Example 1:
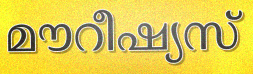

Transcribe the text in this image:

മൗറീഷ്യസ്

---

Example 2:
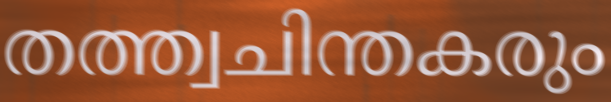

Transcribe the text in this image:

തത്ത്വചിന്തകരും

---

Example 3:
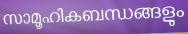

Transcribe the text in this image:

സാമൂഹികബന്ധങ്ങളും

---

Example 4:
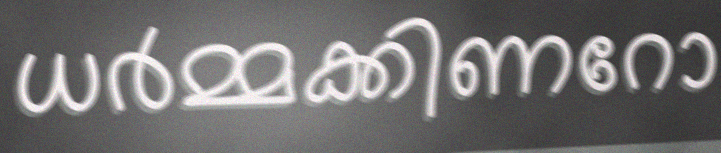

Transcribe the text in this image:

ധർമ്മക്കിണറോ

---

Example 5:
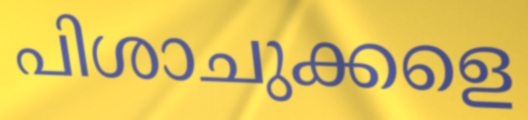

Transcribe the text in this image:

പിശാചുക്കളെ